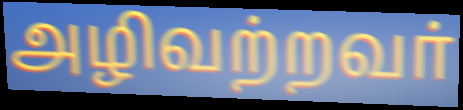
அழிவற்றவர்